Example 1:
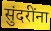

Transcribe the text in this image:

सुंदरींना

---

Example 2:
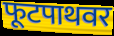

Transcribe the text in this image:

फूटपाथवर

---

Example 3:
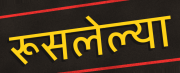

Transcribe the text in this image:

रूसलेल्या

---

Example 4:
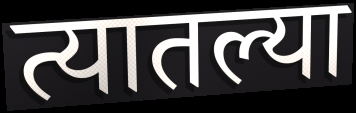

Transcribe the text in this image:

त्यातल्या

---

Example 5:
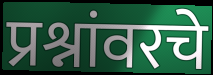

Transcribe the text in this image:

प्रश्नांवरचे